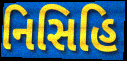
નિસિહિ